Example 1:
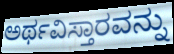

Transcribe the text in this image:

ಅರ್ಥವಿಸ್ತಾರವನ್ನು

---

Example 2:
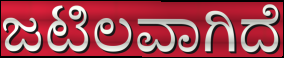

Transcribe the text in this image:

ಜಟಿಲವಾಗಿದೆ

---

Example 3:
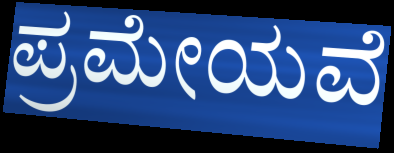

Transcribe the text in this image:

ಪ್ರಮೇಯವೆ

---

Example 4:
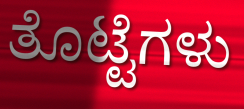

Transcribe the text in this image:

ತೊಟ್ಟೆಗಳು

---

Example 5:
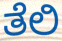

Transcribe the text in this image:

ತೆಲಿ